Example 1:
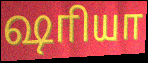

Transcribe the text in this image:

ஷரியா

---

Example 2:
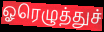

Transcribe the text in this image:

ஓரெழுத்துச்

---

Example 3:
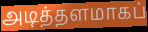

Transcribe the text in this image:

அடித்தளமாகப்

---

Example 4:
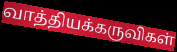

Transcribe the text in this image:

வாத்தியக்கருவிகள்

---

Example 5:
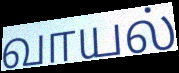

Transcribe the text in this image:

வாயல்